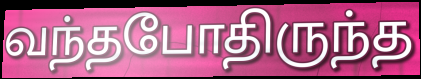
வந்தபோதிருந்த